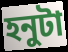
হনুটা